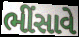
ભીંસાવે